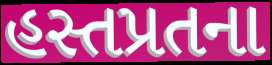
હસ્તપ્રતના